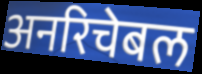
अनरिचेबल